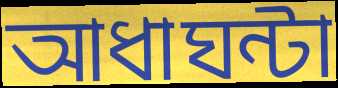
আধাঘন্টা